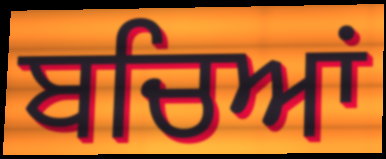
ਬਚਿਆਂ